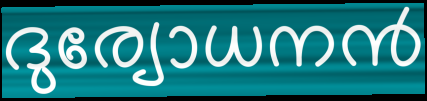
ദുര്യോധനൻ